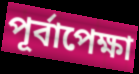
পূর্বাপেক্ষা